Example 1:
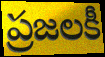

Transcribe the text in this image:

ప్రజలకీ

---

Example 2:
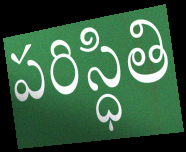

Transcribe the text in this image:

పరిస్ధితి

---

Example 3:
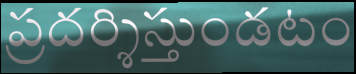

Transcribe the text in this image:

ప్రదర్శిస్తుండటం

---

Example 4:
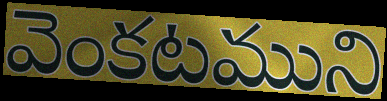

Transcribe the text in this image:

వెంకటముని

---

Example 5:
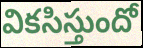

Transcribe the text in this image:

వికసిస్తుందో